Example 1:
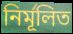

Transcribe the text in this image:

নির্মূলিত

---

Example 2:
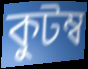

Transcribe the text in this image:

কুটম্ব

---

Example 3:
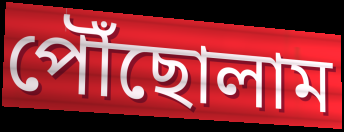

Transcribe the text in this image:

পৌঁছোলাম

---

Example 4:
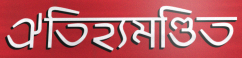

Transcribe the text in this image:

ঐতিহ্যমণ্ডিত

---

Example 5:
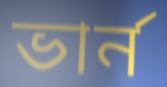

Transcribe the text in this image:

ভার্ন